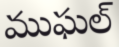
ముఘల్